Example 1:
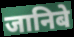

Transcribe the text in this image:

जानिबे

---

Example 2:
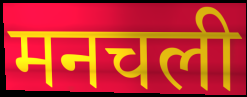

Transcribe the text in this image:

मनचली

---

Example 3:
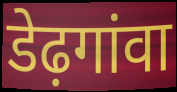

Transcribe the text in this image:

डेढ़गांवा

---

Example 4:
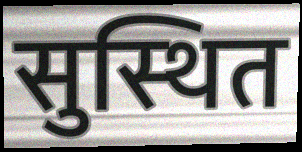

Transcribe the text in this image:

सुस्थित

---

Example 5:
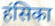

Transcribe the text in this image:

हंसिका